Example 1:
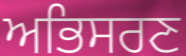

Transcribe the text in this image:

ਅਭਿਸਰਣ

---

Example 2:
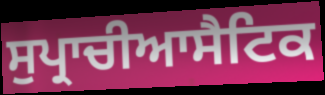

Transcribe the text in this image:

ਸੁਪ੍ਰਾਚੀਆਸੈਟਿਕ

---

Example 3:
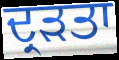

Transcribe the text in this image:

ਦ੍ਰੜਤਾ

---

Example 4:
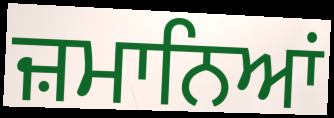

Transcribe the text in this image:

ਜ਼ਮਾਨਿਆਂ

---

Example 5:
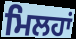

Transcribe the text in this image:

ਮਿਲਹਾਂ